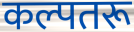
कल्पतरू